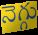
నెగ్గు